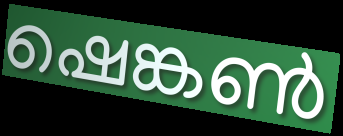
ഷെങ്കൺ